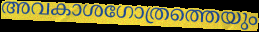
അവകാശഗോത്രത്തെയും